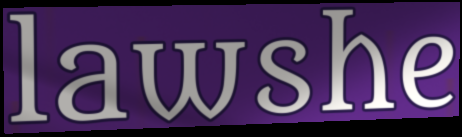
lawshe